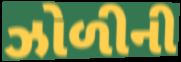
ઝોળીની